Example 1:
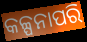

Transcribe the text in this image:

କଳ୍ପନାପରି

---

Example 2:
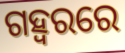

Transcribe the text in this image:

ଗହ୍ୱରରେ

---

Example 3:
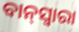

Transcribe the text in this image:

ବାନ୍‌ସ୍ୱାରା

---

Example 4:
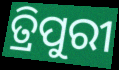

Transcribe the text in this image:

ତ୍ରିପୁରୀ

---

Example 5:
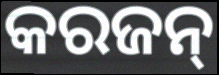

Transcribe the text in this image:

କରଜନ୍